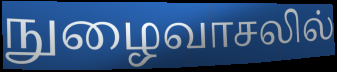
நுழைவாசலில்